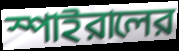
স্পাইরালের